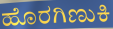
ಹೊರಗಿಣುಕಿ